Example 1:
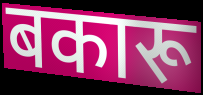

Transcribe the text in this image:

बकारू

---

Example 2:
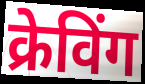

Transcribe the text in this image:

क्रेविंग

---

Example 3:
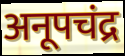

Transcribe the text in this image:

अनूपचंद्र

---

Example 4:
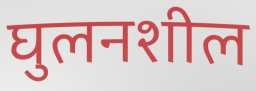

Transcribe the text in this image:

घुलनशील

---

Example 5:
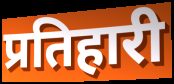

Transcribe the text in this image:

प्रतिहारी